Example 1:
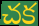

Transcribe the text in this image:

చక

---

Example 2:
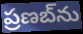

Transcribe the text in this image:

ప్రణబ్‌ను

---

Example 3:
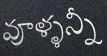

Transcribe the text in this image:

వూళ్ళన్నీ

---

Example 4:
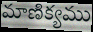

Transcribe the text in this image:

మాణిక్యము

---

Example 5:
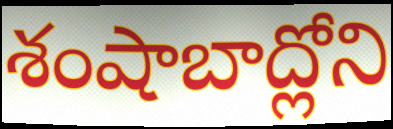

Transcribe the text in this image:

శంషాబాద్లోని